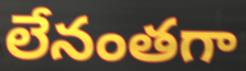
లేనంతగా